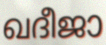
ഖദീജാ